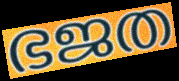
ഭജത